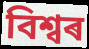
বিশ্বৰ